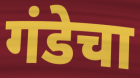
गंडेचा